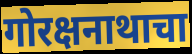
गोरक्षनाथाचा